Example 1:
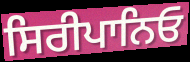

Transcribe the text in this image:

ਸਿਰੀਪਾਨਿਓ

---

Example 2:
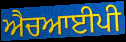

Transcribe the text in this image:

ਐਚਆਈਪੀ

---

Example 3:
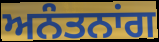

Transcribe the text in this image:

ਅਨੰਤਨਾਂਗ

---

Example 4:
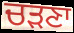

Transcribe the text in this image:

ਚੜਣਾ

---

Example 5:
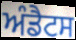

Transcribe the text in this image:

ਅੰਡੈਟਸ